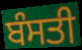
ਬੰਸਤੀ